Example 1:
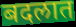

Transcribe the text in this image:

बदलात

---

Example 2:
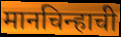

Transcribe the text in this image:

मानचिन्हाची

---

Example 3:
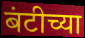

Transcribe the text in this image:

बंटीच्या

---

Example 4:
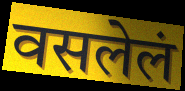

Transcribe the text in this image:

वसलेलं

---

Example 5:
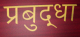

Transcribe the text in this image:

प्रबुद्धा